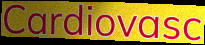
Cardiovasc